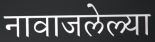
नावाजलेल्या